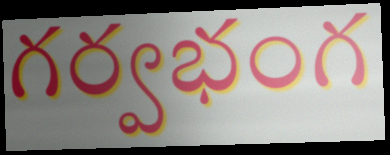
గర్వభంగ